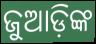
ଜୁଆଡ଼ିଙ୍କ